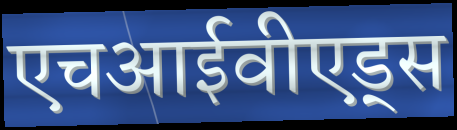
एचआईवीएड्स